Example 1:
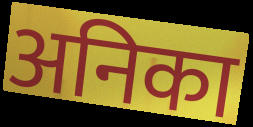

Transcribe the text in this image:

अनिका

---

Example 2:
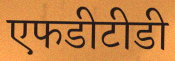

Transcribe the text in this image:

एफडीटीडी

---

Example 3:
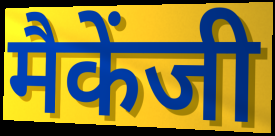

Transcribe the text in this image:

मैकेंजी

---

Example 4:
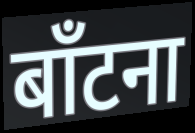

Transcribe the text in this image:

बाँटना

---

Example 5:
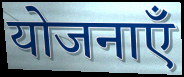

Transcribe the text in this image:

योजनाएँ